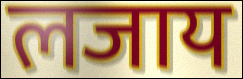
लजाय